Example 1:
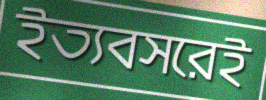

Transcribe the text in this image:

ইত্যবসরেই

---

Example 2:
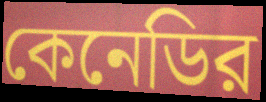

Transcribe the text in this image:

কেনেডির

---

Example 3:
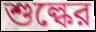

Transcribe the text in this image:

শুল্কের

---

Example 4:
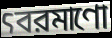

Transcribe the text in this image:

ৎবরমাণো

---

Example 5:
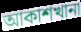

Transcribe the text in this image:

আকাশখানা